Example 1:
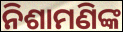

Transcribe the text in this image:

ନିଶାମଣିଙ୍କ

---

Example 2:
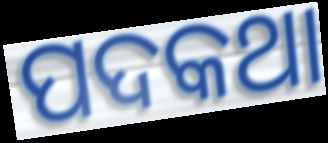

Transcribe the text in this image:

ପଦକଥା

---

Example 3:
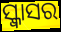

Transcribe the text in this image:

ସ୍କ୍ବାସର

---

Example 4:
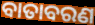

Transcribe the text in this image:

ବାତାବରଣ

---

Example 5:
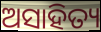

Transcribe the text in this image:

ଅସାହିତ୍ୟ